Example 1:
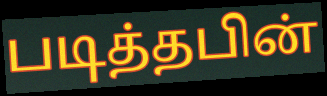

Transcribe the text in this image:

படித்தபின்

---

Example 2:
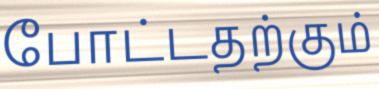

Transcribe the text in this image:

போட்டதற்கும்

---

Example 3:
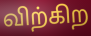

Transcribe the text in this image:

விற்கிற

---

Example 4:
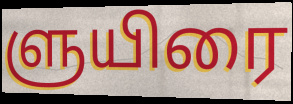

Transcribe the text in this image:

ளுயிரை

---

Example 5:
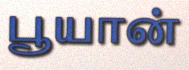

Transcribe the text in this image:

பூயான்